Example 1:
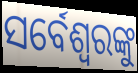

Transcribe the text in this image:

ସର୍ବେଶ୍ୱରଙ୍କୁ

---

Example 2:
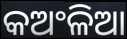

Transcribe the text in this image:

କଅଂଳିଆ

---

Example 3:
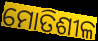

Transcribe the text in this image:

ମୋତିଶୀଳ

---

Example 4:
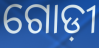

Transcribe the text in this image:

ଗୋଡ଼ୀ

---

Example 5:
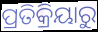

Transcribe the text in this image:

ପ୍ରତିକ୍ରିୟାରୁ